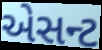
એસન્ટ